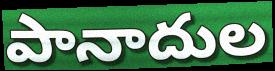
పానాదుల